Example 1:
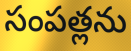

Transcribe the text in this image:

సంపత్లను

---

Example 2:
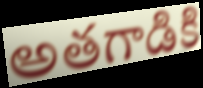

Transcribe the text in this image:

అతగాడికి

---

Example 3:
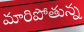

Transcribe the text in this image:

మారిపోతున్న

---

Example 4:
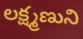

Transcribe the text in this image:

లక్ష్మణుని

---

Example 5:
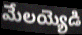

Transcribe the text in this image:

మేలయ్యెడి